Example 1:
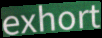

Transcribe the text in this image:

exhort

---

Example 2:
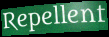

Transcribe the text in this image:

Repellent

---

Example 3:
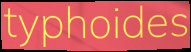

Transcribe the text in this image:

typhoides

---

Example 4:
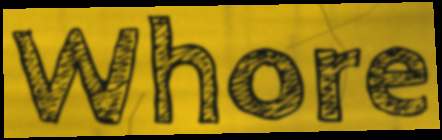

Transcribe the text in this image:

Whore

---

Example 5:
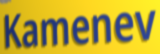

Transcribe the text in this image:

Kamenev